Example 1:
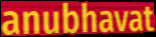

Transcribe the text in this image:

anubhavat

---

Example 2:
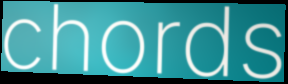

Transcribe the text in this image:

chords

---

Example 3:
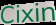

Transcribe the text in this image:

Cixin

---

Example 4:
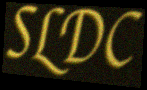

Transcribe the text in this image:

SLDC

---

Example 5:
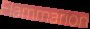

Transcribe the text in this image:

Flammarion